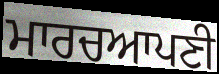
ਮਾਰਚਆਪਣੀ